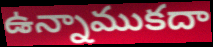
ఉన్నాముకదా